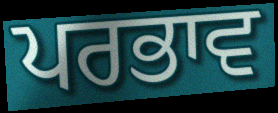
ਪਰਭਾਵ